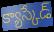
క్యాస్కేడ్